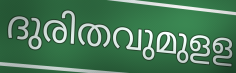
ദുരിതവുമുളള